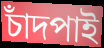
চাঁদপাই